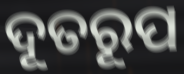
ଦୂତରୂପ